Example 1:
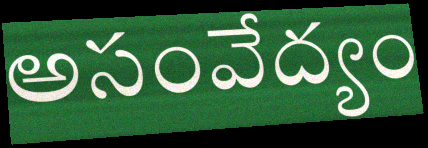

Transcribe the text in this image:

అసంవేద్యం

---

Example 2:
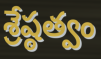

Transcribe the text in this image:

శ్రేష్ఠత్వం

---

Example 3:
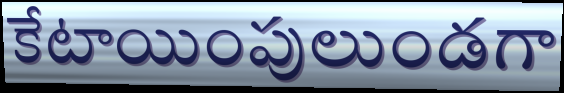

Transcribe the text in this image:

కేటాయింపులుండగా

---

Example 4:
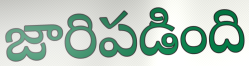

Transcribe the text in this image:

జారిపడింది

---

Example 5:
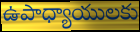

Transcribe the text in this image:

ఉపాధ్యాయులకు